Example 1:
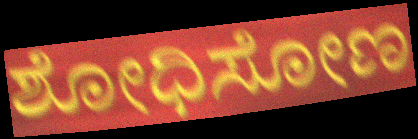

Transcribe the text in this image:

ಶೋಧಿಸೋಣ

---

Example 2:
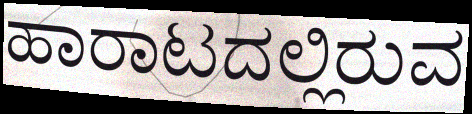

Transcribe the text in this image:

ಹಾರಾಟದಲ್ಲಿರುವ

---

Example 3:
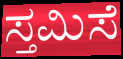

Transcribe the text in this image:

ಸ್ತಮಿಸೆ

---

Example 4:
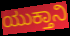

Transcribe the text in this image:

ಯುಕ್ತಾನಿ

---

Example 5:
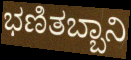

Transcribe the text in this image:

ಭಣಿತಬ್ಬಾನಿ